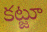
కట్జూ